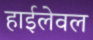
हाईलेवल